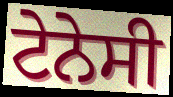
ਟੇਨੇਸੀ